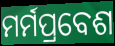
ମର୍ମପ୍ରବେଶ